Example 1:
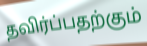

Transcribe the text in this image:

தவிர்ப்பதற்கும்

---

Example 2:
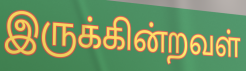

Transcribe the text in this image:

இருக்கின்றவள்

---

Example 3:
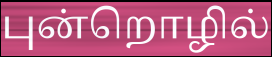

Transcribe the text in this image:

புன்றொழில்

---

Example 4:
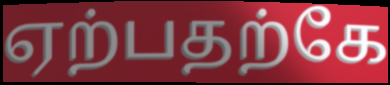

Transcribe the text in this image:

ஏற்பதற்கே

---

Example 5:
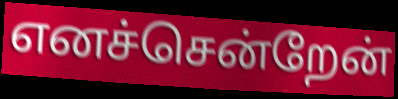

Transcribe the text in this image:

எனச்சென்றேன்